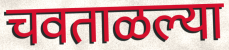
चवताळल्या